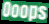
Ooops